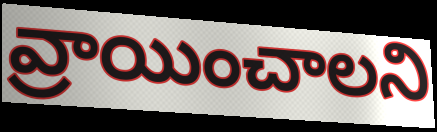
వ్రాయించాలని